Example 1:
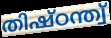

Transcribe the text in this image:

തിഷ്ഠന്ത്വ്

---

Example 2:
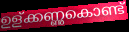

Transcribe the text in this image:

ഉള്ക്കണ്ണുകൊണ്ട്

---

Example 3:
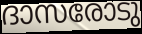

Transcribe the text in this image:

ദാസരോടു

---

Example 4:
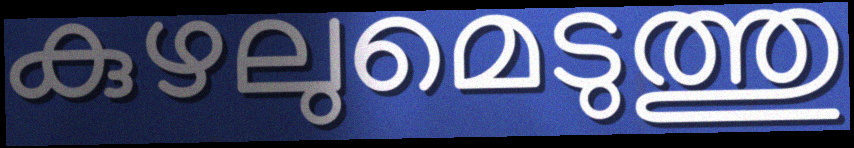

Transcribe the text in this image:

കുഴലുമെടുത്തു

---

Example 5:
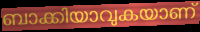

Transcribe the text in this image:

ബാക്കിയാവുകയാണ്